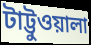
টাট্টুওয়ালা